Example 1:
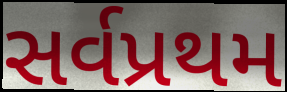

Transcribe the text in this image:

સર્વપ્રથમ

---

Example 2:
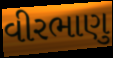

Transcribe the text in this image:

વીરભાણુ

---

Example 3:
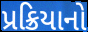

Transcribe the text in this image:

પ્રક્રિયાનો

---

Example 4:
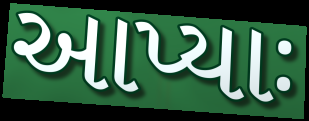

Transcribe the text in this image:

આપ્યાઃ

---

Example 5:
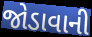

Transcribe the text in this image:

જોડાવાની